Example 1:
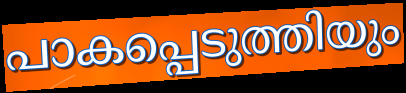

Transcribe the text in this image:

പാകപ്പെടുത്തിയും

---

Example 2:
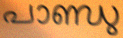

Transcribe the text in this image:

പാണ്ഡു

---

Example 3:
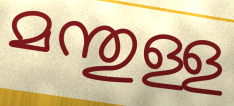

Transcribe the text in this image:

മന്തുള്ള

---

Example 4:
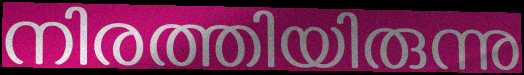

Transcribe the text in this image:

നിരത്തിയിരുന്നു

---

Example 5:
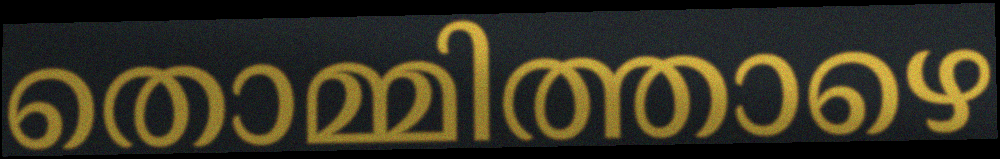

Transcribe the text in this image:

തൊമ്മിത്താഴെ